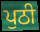
ਪੁਠੀ